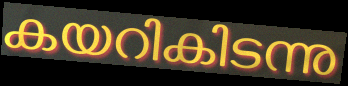
കയറികിടന്നു